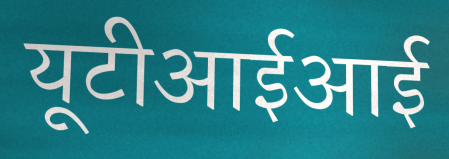
यूटीआईआई